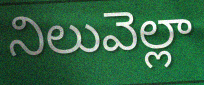
నిలువెల్లా